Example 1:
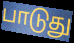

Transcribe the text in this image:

பாடுது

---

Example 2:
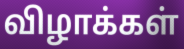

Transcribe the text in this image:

விழாக்கள்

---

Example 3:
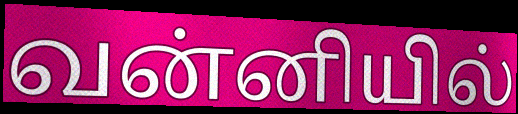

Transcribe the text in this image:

வன்னியில்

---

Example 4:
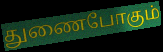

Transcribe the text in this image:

துணைபோகும்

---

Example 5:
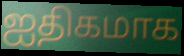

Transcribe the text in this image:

ஐதிகமாக